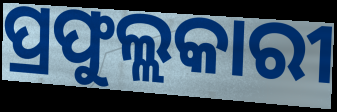
ପ୍ରଫୁଲ୍ଲକାରୀ